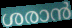
ശരാൻ